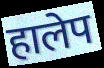
हालेप